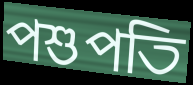
পশুপতি